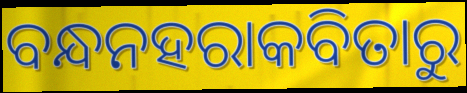
ବନ୍ଧନହରାକବିତାରୁ